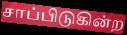
சாப்பிடுகின்ற